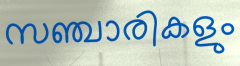
സഞ്ചാരികളും